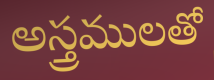
అస్త్రములతో